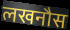
लखनौस